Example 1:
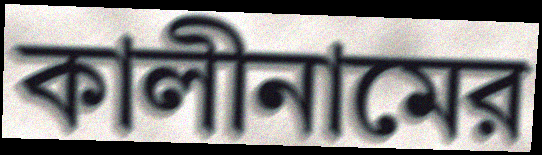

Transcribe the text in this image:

কালীনামের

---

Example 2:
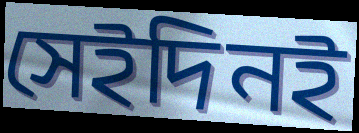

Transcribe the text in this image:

সেইদিনই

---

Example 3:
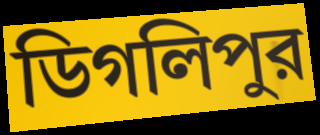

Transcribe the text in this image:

ডিগলিপুর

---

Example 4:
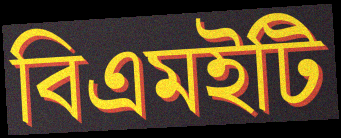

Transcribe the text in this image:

বিএমইটি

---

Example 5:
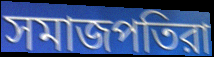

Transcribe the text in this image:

সমাজপতিরা